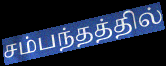
சம்பந்தத்தில்